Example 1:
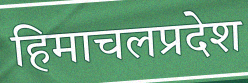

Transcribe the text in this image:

हिमाचलप्रदेश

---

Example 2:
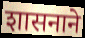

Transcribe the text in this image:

शासनाने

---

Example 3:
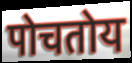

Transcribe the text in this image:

पोचतोय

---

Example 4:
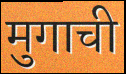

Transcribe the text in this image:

मुगाची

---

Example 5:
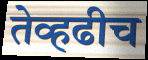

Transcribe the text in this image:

तेव्हढीच